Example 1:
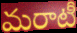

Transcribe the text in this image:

మరాటీ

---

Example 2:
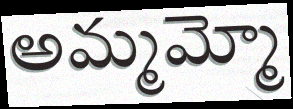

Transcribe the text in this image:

అమ్మమ్మో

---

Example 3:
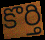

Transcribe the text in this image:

కొర్తి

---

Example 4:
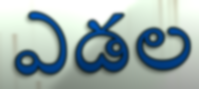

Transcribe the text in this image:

ఎడల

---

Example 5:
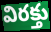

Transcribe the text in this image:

విరక్తు